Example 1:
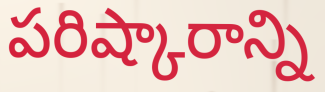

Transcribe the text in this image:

పరిష్కారాన్ని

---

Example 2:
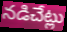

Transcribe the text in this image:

నడిచేట్లు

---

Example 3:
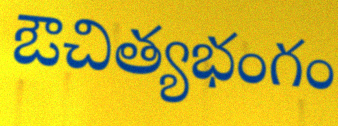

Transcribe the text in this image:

ఔచిత్యభంగం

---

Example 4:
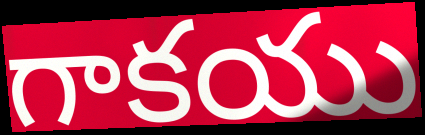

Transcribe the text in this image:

గాకయు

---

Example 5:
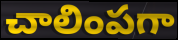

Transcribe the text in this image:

చాలింపగా